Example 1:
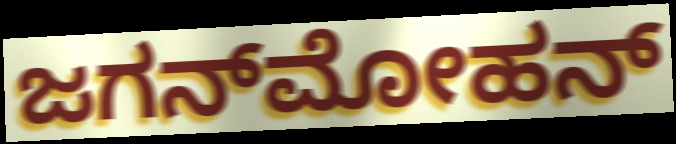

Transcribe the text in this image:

ಜಗನ್‌ಮೋಹನ್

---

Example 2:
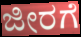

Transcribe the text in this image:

ಜೀರಗೆ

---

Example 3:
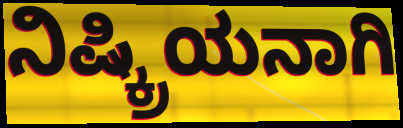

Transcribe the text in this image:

ನಿಷ್ಕ್ರಿಯನಾಗಿ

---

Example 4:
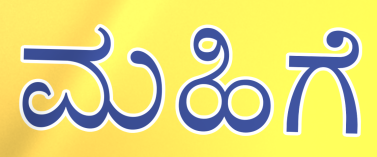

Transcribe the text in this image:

ಮಹಿಗೆ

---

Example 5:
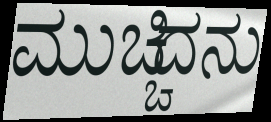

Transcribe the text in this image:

ಮುಚ್ಚಿದನು